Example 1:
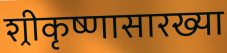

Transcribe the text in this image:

श्रीकृष्णासारख्या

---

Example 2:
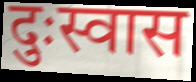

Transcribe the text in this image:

दुःस्वास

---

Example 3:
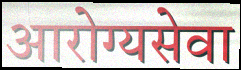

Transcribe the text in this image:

आरोग्यसेवा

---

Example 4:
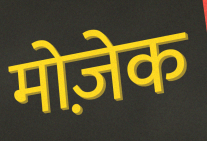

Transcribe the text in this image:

मोज़ेक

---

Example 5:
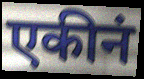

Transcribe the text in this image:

एकीनं